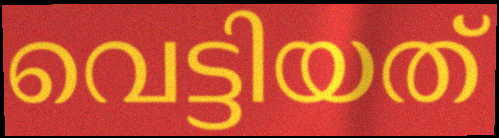
വെട്ടിയത്